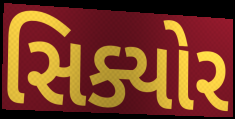
સિક્યોર